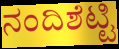
ನಂದಿಶೆಟ್ಟಿ